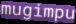
mugimpu